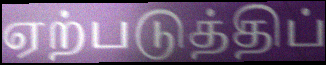
ஏற்படுத்திப்